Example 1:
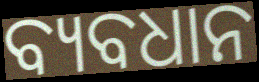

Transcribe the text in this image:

ବ୍ୟବଧାନ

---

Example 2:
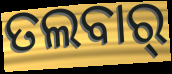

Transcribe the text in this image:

ତଲବାର୍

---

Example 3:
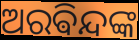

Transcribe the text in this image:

ଅରଵିନ୍ଦଙ୍କ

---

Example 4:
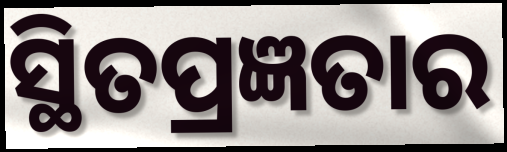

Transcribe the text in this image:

ସ୍ଥିତପ୍ରଜ୍ଞତାର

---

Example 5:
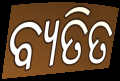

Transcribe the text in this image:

ବ୍ୟତିତ